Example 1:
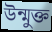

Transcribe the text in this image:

উন্মুক্ত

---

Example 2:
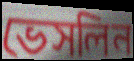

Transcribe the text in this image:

ভেসলিন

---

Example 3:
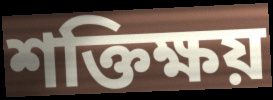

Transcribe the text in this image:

শক্তিক্ষয়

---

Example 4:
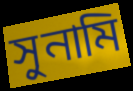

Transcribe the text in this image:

সুনামি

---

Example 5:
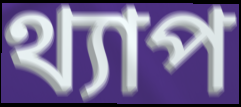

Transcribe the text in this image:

থ্যাপ